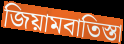
জিয়ামবাতিস্তা